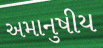
અમાનુષીય